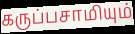
கருப்பசாமியும்